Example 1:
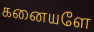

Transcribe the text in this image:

கனையளே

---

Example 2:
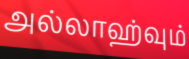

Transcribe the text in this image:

அல்லாஹ்வும்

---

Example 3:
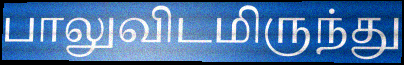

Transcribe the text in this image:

பாலுவிடமிருந்து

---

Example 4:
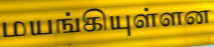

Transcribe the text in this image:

மயங்கியுள்ளன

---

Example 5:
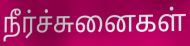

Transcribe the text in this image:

நீர்ச்சுனைகள்